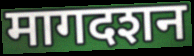
मागदशन